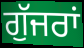
ਗੁੱਜਰਾਂ